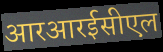
आरआरईसीएल